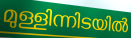
മുള്ളിന്നിടയിൽ